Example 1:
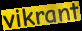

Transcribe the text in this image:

vikrant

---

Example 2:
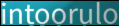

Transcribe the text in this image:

intoorulo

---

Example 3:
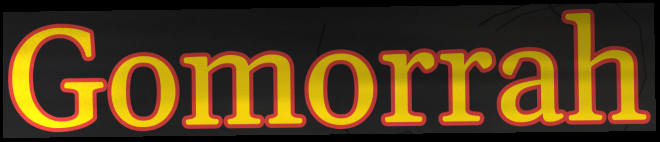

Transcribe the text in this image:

Gomorrah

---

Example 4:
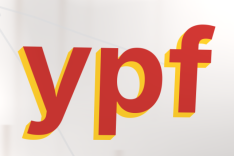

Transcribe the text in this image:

ypf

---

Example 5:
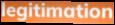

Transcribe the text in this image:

legitimation